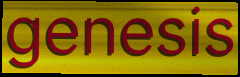
genesis